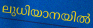
ലുധിയാനയിൽ